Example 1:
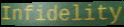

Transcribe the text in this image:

Infidelity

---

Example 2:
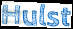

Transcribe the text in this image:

Hulst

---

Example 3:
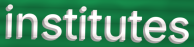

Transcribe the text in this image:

institutes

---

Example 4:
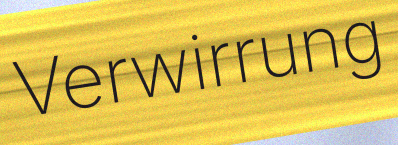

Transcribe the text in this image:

Verwirrung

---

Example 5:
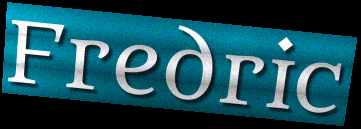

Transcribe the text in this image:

Fredric